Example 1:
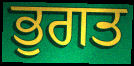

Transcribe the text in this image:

ਭੁਗਤ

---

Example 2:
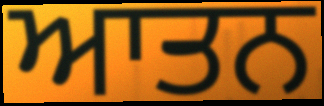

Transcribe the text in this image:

ਆਤਨ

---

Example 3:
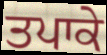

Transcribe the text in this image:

ਤਪਾਕੇ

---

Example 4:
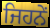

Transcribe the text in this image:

ਜਿਹਨੇਂ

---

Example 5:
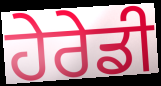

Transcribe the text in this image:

ਹੇਰੇਡੀ